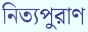
নিত্যপুরাণ